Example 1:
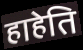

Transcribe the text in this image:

हाहेति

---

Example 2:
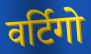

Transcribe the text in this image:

वर्टिगो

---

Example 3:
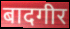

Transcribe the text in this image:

बादगीर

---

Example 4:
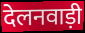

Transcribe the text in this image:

देलनवाड़ी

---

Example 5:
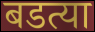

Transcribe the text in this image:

बडत्या